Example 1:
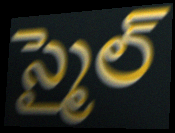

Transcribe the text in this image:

స్మైల్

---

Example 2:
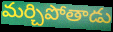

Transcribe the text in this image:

మర్చిపోతాడు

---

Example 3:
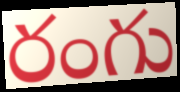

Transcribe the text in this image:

రంగు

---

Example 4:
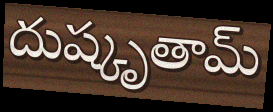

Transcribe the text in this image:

దుష్కృతామ్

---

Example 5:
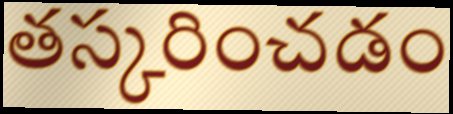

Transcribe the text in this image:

తస్కరించడం